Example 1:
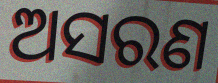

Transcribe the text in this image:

ଅସରଣ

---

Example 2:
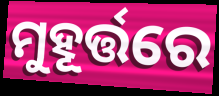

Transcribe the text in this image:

ମୁହୂର୍ତ୍ତରେ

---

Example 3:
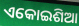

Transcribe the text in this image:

ଏକୋଇଶିଆ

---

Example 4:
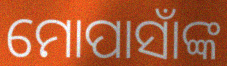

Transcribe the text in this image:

ମୋପାସାଁଙ୍କ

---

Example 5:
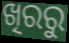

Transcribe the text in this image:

ଖିରରୁ